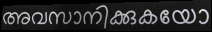
അവസാനിക്കുകയോ